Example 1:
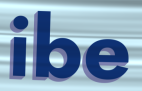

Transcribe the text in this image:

ibe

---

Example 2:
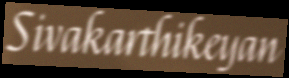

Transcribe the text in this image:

Sivakarthikeyan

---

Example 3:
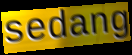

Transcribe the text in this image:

sedang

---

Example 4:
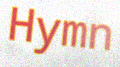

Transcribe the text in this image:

Hymn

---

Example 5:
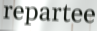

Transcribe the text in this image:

repartee